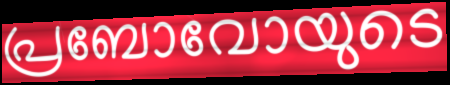
പ്രബോവോയുടെ